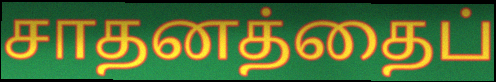
சாதனத்தைப்